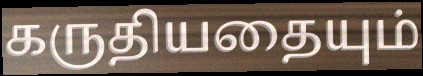
கருதியதையும்